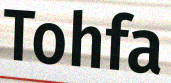
Tohfa